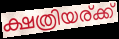
ക്ഷത്രിയര്ക്ക്